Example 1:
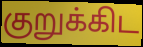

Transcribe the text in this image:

குறுக்கிட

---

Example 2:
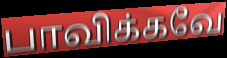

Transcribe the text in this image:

பாவிக்கவே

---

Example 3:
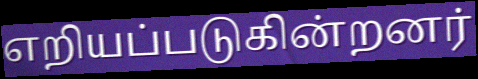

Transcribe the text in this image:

எறியப்படுகின்றனர்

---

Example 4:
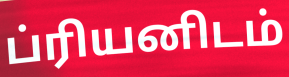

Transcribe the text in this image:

ப்ரியனிடம்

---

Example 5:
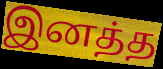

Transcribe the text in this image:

இனத்த